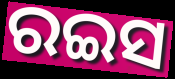
ରଇସ